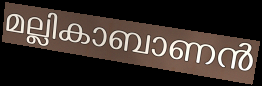
മല്ലികാബാണൻ